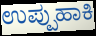
ಉಪ್ಪುಹಾಕಿ